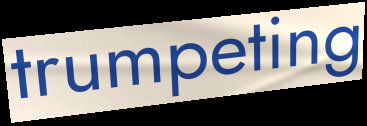
trumpeting